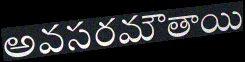
అవసరమౌతాయి